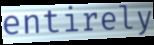
entirely